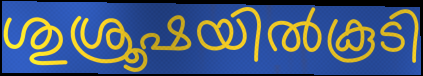
ശുശ്രൂഷയിൽകൂടി